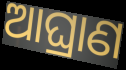
ଆଘ୍ରାଣ